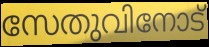
സേതുവിനോട്